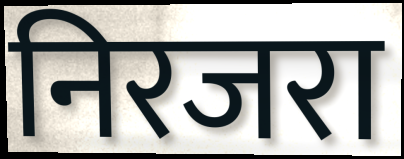
निरजरा